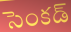
సెంకడ్